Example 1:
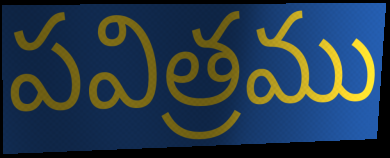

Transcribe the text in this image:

పవిత్రము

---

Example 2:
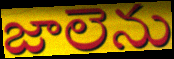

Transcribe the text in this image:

జాలెను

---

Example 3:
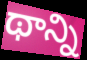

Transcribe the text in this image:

థాన్ని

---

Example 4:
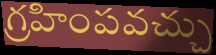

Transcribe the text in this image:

గ్రహింపవచ్చు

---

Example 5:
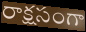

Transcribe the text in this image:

రాక్షసంగా